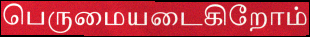
பெருமையடைகிறோம்